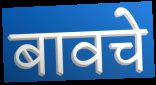
बावचे